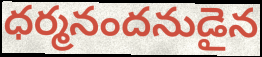
ధర్మనందనుడైన